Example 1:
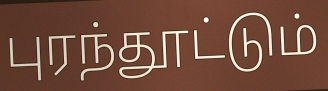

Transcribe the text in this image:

புரந்தூட்டும்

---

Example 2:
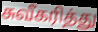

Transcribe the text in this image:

சுவீகரித்து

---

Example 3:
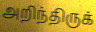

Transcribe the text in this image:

அறிந்திருக்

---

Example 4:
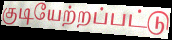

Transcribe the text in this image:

குடியேற்றப்பட்டு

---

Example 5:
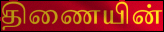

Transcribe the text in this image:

திணையின்